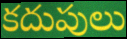
కదుపులు